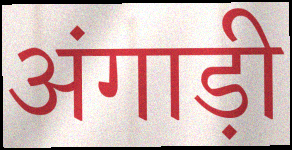
अंगाड़ी